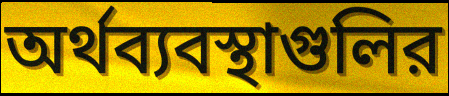
অর্থব্যবস্থাগুলির